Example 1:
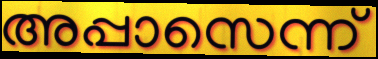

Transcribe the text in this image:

അപ്പാസെന്ന്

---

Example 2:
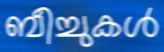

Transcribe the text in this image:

ബീച്ചുകൾ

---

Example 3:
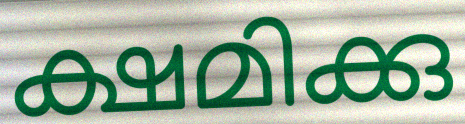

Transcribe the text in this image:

ക്ഷമിക്കു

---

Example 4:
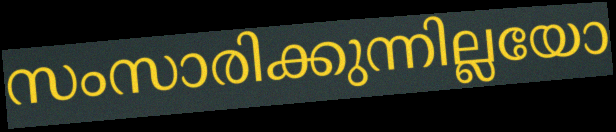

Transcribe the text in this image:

സംസാരിക്കുന്നില്ലയോ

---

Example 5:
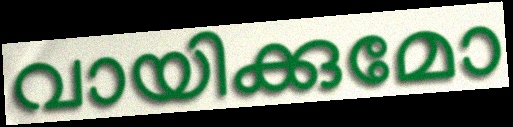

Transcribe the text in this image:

വായിക്കുമോ